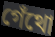
গেঁথো